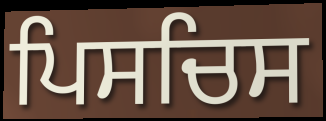
ਪਿਸਚਿਸ